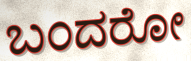
ಬಂದರೋ